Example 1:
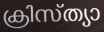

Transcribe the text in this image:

ക്രിസ്‌ത്യാ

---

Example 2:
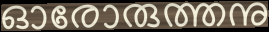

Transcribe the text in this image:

ഓരോരുത്തനു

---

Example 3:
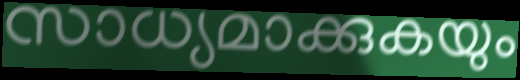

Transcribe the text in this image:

സാധ്യമാക്കുകയും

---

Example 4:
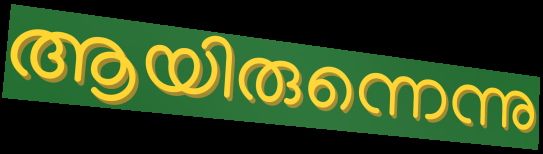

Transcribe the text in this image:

ആയിരുന്നെന്നു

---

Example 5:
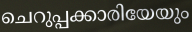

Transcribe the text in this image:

ചെറുപ്പക്കാരിയേയും